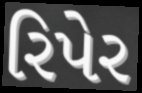
રિપેર